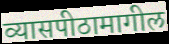
व्यासपीठामागील